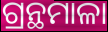
ଗ୍ରନ୍ଥମାଳା